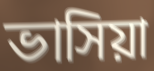
ভাসিয়া